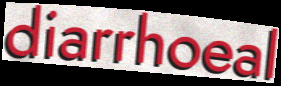
diarrhoeal